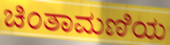
ಚಿಂತಾಮಣಿಯ